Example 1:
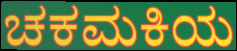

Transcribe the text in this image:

ಚಕಮಕಿಯ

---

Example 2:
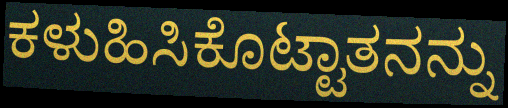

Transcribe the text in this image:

ಕಳುಹಿಸಿಕೊಟ್ಟಾತನನ್ನು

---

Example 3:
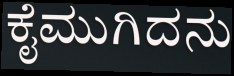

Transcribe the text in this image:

ಕೈಮುಗಿದನು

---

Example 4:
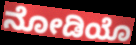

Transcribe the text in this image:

ನೋಡಿಯೊ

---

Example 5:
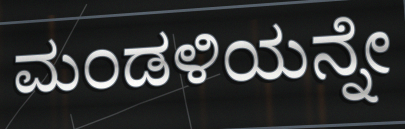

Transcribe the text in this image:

ಮಂಡಳಿಯನ್ನೇ